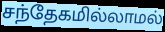
சந்தேகமில்லாமல்